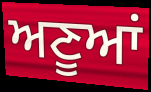
ਅਣੂਆਂ